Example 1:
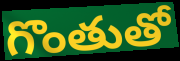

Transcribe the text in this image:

గొంతుతో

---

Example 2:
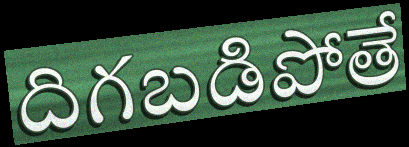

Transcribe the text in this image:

దిగబడిపోతే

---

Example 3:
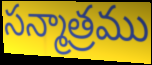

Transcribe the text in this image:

సన్మాత్రము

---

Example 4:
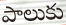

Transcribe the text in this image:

పాలుకు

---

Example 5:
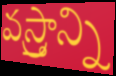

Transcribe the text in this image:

వస్ర్తాన్ని